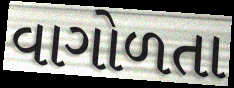
વાગોળતા